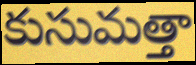
కుసుమత్తా